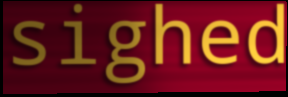
sighed